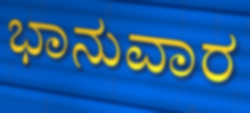
ಭಾನುವಾರ